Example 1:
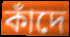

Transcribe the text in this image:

কাঁদে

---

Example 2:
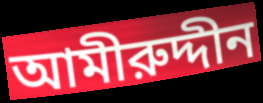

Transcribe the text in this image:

আমীরুদ্দীন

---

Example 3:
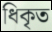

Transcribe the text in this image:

ধিকৃত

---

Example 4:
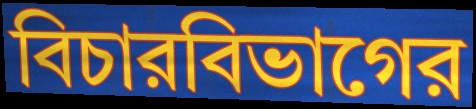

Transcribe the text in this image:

বিচারবিভাগের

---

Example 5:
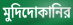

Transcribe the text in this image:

মুদিদোকানির